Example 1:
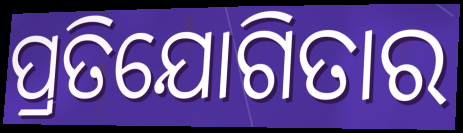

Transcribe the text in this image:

ପ୍ରତିଯୋଗିତାର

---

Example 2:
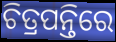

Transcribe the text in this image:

ଚିତ୍ରପନ୍ତିରେ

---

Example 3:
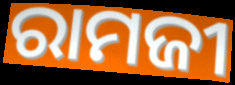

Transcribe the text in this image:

ରାମଜୀ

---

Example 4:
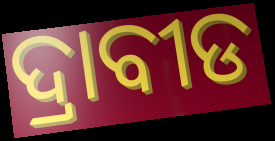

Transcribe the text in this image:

ଦ୍ରାବୀଡ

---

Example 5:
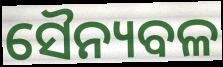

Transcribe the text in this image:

ସୈନ୍ୟବଳ